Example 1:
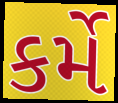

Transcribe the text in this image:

કર્મે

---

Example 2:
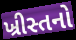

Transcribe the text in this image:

ખ્રીસ્તનો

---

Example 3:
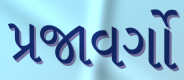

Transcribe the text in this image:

પ્રજાવર્ગો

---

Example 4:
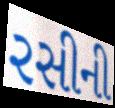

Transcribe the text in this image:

રસીની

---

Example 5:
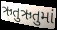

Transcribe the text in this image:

ઋતુઋતુમાં